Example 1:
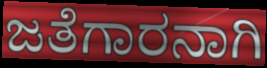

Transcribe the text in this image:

ಜತೆಗಾರನಾಗಿ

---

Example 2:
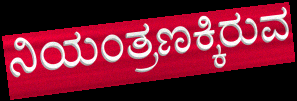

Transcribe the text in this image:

ನಿಯಂತ್ರಣಕ್ಕಿರುವ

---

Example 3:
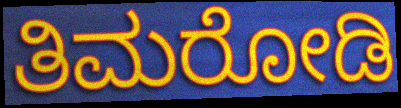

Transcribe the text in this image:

ತಿಮರೋಡಿ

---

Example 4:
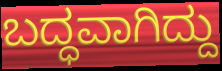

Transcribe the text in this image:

ಬದ್ಧವಾಗಿದ್ದು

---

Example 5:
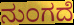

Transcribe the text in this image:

ನುಂಗದೆ